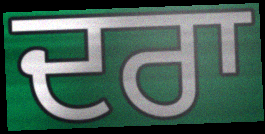
ਦਰਾ